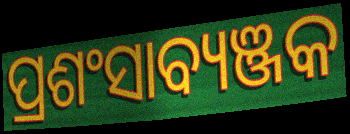
ପ୍ରଶଂସାବ୍ୟଞ୍ଜକ